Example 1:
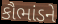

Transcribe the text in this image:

કૌભાંડને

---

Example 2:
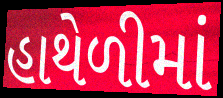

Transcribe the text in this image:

હાથેળીમાં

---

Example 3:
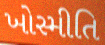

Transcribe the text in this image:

ખોસ્મીતિ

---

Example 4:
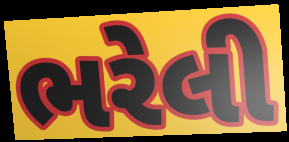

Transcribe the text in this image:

ભરેલી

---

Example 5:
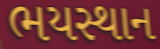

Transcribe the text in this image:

ભયસ્થાન